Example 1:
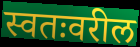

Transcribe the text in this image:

स्वतःवरील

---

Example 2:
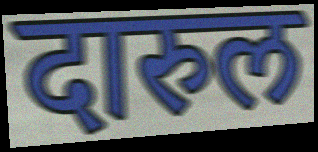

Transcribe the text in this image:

दारुल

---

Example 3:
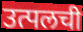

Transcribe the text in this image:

उत्पलची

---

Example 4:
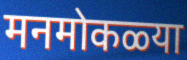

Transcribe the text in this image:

मनमोकळ्या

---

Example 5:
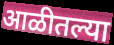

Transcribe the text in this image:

आळीतल्या